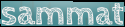
sammat